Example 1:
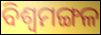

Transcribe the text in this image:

ବିଶ୍ୱମଙ୍ଗଳ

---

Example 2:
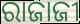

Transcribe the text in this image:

ରାଜାଜୀ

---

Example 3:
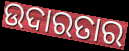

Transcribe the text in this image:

ଉଦାରତାର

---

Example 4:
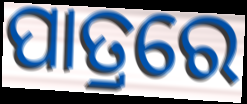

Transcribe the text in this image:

ପାତ୍ରରେ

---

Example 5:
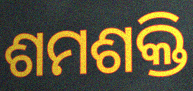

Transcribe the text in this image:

ଶମଶକ୍ତି